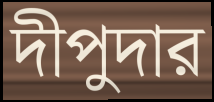
দীপুদার